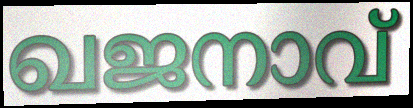
ഖജനാവ്